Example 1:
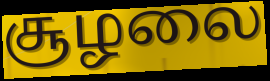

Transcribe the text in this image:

சூழலை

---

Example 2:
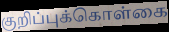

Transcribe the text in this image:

குறிப்புக்கொள்கை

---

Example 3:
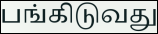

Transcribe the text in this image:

பங்கிடுவது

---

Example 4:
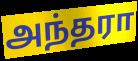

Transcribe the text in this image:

அந்தரா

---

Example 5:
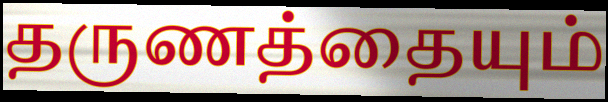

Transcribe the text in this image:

தருணத்தையும்